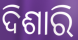
ଦିଶାରି